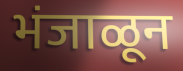
भंजाळून